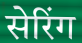
सेरिंग